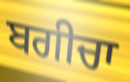
ਬਗੀਚਾ